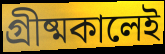
গ্রীষ্মকালেই